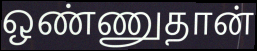
ஒண்ணுதான்